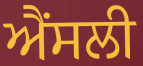
ਐਂਸਲੀ